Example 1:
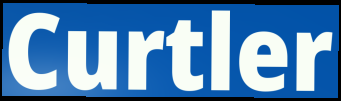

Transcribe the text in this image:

Curtler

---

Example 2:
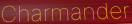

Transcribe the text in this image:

Charmander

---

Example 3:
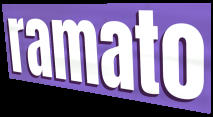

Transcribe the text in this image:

ramato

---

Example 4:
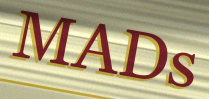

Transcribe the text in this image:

MADs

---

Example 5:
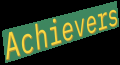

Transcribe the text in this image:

Achievers